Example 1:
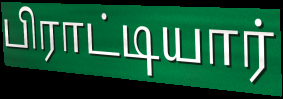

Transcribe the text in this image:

பிராட்டியார்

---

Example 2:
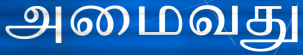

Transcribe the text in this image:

அமைவது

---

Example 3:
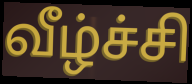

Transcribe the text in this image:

வீழ்ச்சி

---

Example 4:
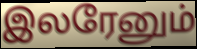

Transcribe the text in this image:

இலரேனும்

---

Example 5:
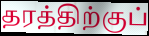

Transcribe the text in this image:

தரத்திற்குப்